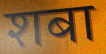
शबा